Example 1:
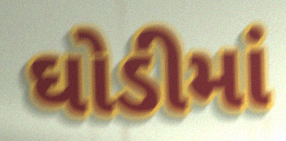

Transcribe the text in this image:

ઘોડીમાં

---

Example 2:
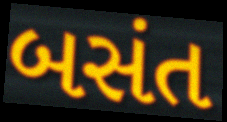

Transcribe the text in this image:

બસંત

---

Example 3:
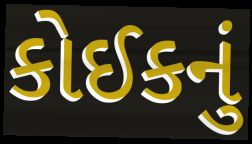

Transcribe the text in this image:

કોઈકનું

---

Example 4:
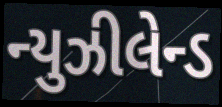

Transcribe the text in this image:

ન્યુઝીલેન્ડ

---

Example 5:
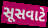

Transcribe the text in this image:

સૂસવાટે